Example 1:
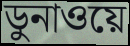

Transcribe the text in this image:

ডুনাওয়ে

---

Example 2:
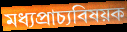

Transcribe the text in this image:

মধ্যপ্রাচ্যবিষয়ক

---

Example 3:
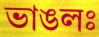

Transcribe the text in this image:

ভাঙলঃ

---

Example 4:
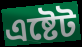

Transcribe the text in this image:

এষ্টেট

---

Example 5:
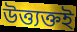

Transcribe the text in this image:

উত্ত্যক্তই